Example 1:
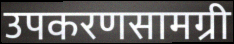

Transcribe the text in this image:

उपकरणसामग्री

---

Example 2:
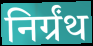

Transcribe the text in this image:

निर्ग्रंथ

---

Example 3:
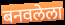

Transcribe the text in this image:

बनवलेला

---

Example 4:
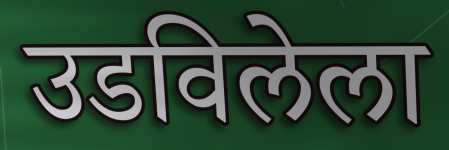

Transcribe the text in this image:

उडविलेला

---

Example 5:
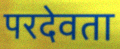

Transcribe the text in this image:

परदेवता